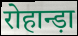
रोहान्ड़ा